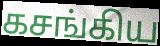
கசங்கிய